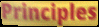
Principles